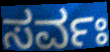
ಸರ್ವಃ